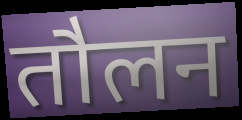
तौलन